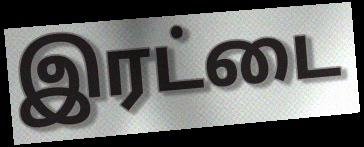
இரட்டை